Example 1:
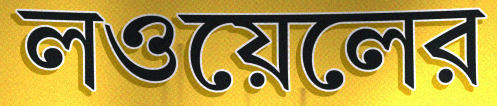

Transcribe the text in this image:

লওয়েলের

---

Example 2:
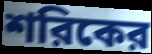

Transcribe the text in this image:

শরিকের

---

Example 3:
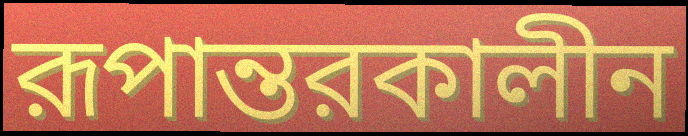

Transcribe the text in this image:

রূপান্তরকালীন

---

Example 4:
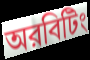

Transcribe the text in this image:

অরবিটিং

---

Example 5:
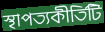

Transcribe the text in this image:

স্থাপত্যকীর্তিটি